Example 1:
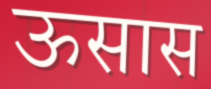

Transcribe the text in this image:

ऊसास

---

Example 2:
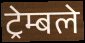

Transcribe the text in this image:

ट्रेम्बले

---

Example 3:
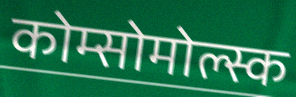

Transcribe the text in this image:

कोम्सोमोल्स्क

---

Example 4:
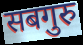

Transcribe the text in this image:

सबगुरु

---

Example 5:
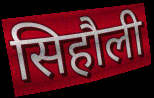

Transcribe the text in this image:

सिहौली